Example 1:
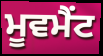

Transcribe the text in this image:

ਮੂਵਮੈਂਟ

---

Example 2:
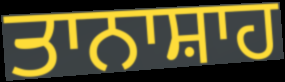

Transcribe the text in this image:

ਤਾਨਾਸ਼ਾਹ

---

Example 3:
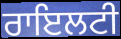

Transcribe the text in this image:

ਰਾਇਲਟੀ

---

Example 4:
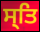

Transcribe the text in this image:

ਸ੍ਤਿ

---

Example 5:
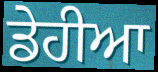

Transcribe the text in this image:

ਡੇਹੀਆ